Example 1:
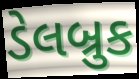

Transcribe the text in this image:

ડેલબ્રુક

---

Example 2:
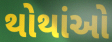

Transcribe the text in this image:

થોથાંઓ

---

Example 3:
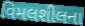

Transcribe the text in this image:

વિમલશીલના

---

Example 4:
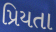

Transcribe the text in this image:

પ્રિયતા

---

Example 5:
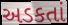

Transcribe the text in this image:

અડકતાં